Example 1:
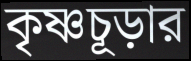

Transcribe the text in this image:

কৃষ্ণচূড়ার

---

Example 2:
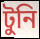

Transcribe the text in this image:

টুনি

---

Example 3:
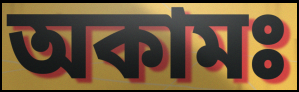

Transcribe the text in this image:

অকামঃ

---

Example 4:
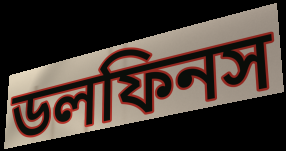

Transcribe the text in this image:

ডলফিনস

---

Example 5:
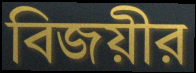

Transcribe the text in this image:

বিজয়ীর